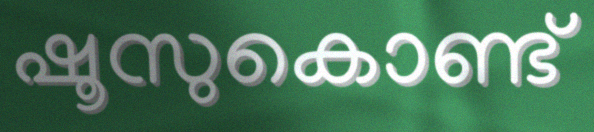
ഷൂസുകൊണ്ട്